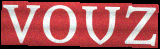
vouz